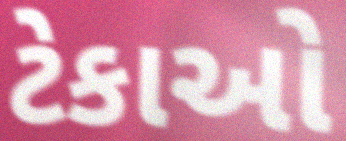
ટેકાઓ